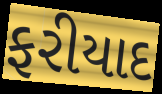
ફરીયાદ